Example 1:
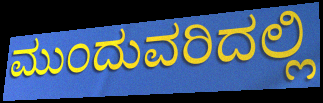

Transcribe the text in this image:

ಮುಂದುವರಿದಲ್ಲಿ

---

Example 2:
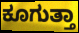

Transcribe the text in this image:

ಕೂಗುತ್ತಾ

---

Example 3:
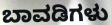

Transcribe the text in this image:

ಬಾವಡಿಗಳು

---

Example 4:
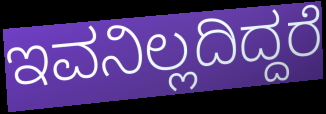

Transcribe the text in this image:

ಇವನಿಲ್ಲದಿದ್ದರೆ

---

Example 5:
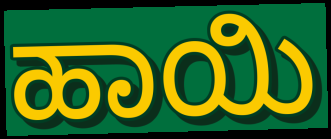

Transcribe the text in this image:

ಹಾಯಿ